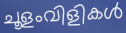
ചൂളംവിളികൾ